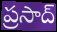
ప్రసాద్